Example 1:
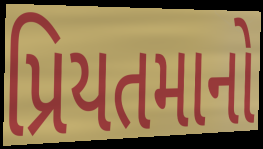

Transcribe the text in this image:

પ્રિયતમાનો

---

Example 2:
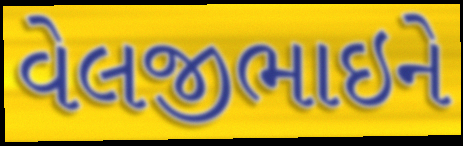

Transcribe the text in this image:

વેલજીભાઇને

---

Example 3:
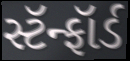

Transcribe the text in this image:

સ્ટૅન્ફૉર્ડ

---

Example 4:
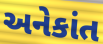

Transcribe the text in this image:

અનેકાંત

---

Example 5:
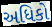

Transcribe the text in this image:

અધિકો